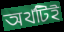
অর্থটিই